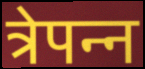
त्रेपन्न